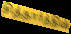
சித்தார்த்தின்